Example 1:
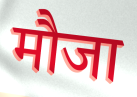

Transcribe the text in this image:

मौजा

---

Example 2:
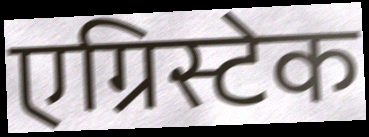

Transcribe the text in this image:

एग्रिस्टेक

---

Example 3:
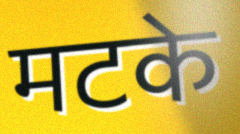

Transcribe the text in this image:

मटके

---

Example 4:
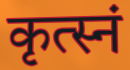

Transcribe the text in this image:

कृत्स्नं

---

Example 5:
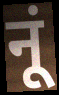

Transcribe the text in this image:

नूं